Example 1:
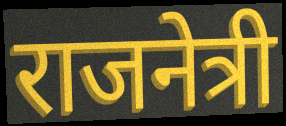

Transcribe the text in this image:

राजनेत्री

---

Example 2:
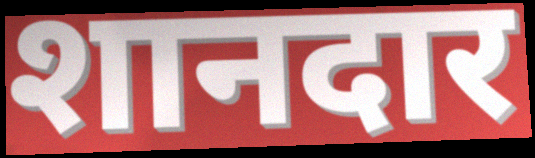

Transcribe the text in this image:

शानदार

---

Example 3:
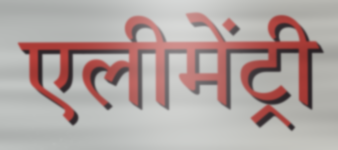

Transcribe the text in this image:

एलीमेंट्री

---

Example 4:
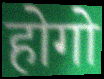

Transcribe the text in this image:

होगो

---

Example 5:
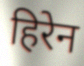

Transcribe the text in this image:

हिरेन